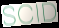
SCID